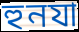
হুনযা